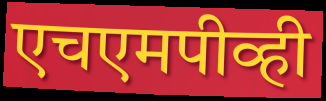
एचएमपीव्ही